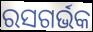
ରସଗର୍ଭକ